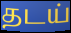
தடய்